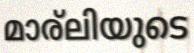
മാര്ലിയുടെ